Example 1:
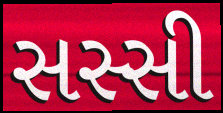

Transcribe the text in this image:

સસ્સી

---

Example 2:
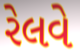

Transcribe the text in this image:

રેલવે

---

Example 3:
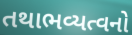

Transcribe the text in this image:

તથાભવ્યત્વનો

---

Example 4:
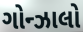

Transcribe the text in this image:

ગોન્ઝાલો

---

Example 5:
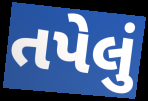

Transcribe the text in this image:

તપેલું